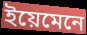
ইয়েমেনে